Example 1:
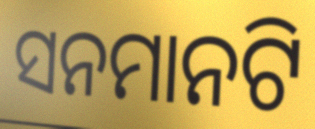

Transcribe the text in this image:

ସନମାନଟି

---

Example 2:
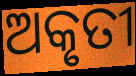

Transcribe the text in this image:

ଅକୃତୀ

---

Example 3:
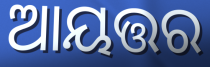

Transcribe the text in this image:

ଆୟତ୍ତର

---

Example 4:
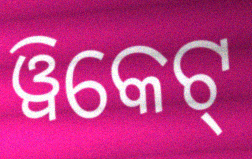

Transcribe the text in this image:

ୱିକେଟ୍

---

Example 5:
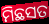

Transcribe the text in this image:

ମିଛସତ